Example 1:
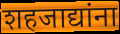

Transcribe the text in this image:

शहजाद्यांना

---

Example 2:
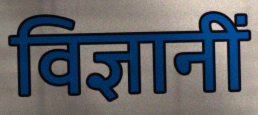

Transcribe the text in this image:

विज्ञानीं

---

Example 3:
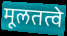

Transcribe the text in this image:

मूलतत्वे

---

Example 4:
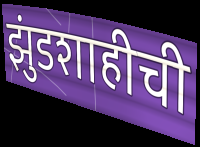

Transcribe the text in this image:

झुंडशाहीची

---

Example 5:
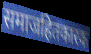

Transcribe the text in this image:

समाजहितकारक